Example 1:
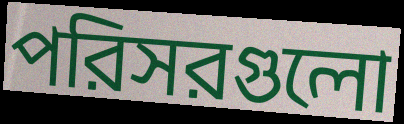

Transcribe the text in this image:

পরিসরগুলো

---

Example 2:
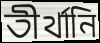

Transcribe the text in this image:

তীর্থানি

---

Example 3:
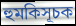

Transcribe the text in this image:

হুমকিসূচক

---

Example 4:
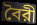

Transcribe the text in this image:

বৈরী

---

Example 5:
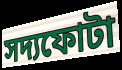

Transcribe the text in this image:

সদ্যফোটা